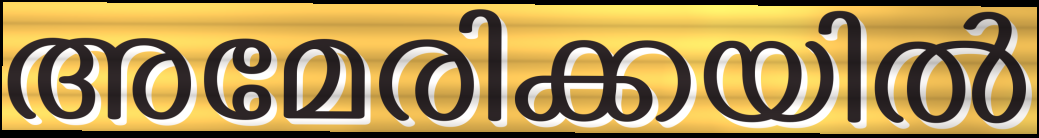
അമേരിക്കയിൽ